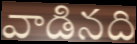
వాడినది